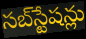
సబ్‌స్టేషన్లు